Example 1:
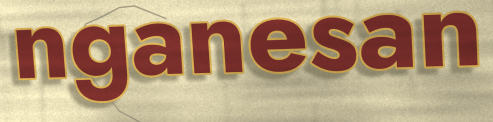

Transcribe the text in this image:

nganesan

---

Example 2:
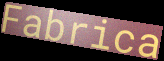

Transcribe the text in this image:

Fabrica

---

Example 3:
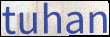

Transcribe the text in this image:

tuhan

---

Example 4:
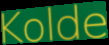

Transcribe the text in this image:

Kolde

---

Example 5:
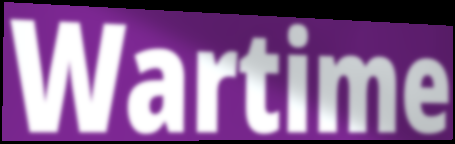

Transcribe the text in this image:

Wartime